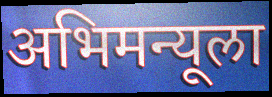
अभिमन्यूला